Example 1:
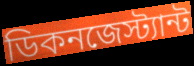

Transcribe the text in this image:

ডিকনজেস্ট্যান্ট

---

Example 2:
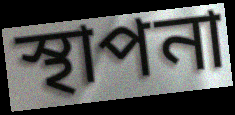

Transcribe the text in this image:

স্থাপনা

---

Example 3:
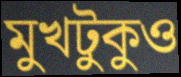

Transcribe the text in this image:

মুখটুকুও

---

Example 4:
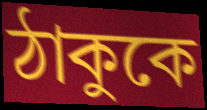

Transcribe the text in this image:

ঠাকুকে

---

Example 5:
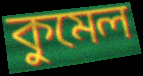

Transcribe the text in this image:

কুমেল